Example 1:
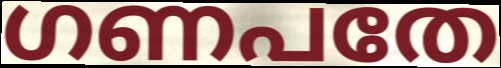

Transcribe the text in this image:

ഗണപതേ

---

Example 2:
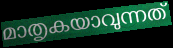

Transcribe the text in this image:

മാതൃകയാവുന്നത്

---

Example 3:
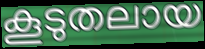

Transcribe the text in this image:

കൂടുതലായ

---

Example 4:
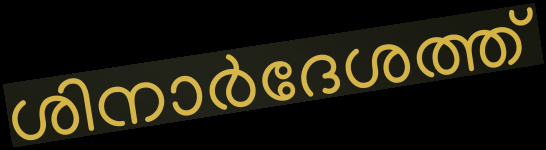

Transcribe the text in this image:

ശിനാർദേശത്ത്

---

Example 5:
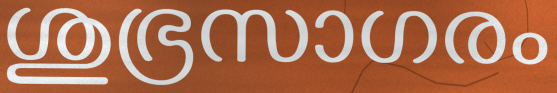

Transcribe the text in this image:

ശുഭ്രസാഗരം